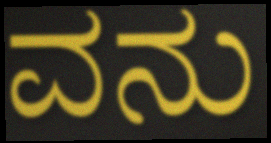
ವನು